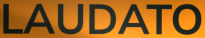
LAUDATO